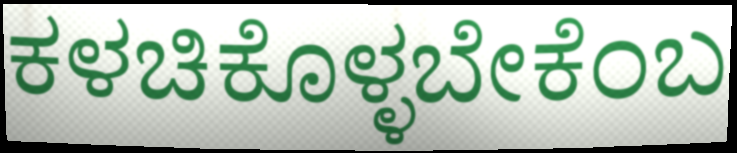
ಕಳಚಿಕೊಳ್ಳಬೇಕೆಂಬ